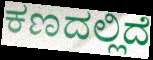
ಕಣದಲ್ಲಿದೆ